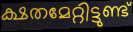
ക്ഷതമേറ്റിട്ടുണ്ട്